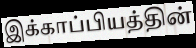
இக்காப்பியத்தின்